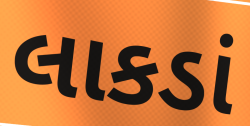
લાકડાં